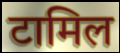
टामिल